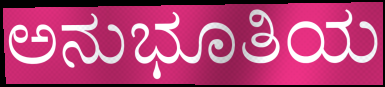
ಅನುಭೂತಿಯ